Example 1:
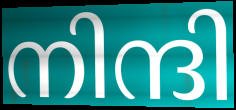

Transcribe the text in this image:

നിന്ദി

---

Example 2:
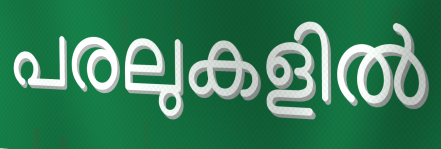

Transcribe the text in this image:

പരലുകളിൽ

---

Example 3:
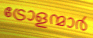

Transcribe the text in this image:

ട്രോളന്മാർ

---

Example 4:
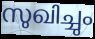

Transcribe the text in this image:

സുഖിച്ചും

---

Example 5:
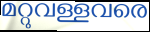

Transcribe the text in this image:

മറ്റുവള്ളവരെ